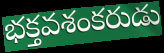
భక్తవశంకరుడు